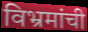
विभ्रमांची